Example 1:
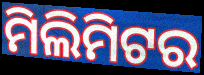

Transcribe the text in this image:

ମିଲିମିଟର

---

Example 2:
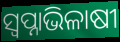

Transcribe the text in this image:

ସ୍ଵପ୍ନାଭିଳାଷୀ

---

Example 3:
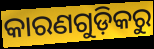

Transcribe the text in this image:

କାରଣଗୁଡ଼ିକରୁ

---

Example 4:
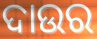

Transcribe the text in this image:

ଦାଉର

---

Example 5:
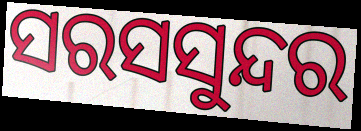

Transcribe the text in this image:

ସରସସୁନ୍ଦର